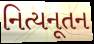
નિત્યનૂતન